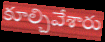
కూల్చివేశారు